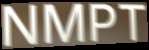
NMPT